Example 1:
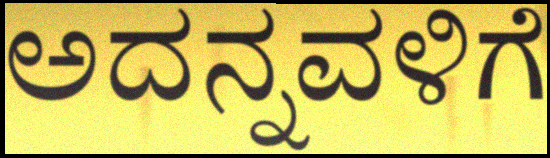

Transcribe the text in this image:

ಅದನ್ನವಳಿಗೆ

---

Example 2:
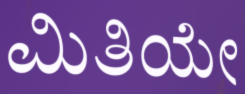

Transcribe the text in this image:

ಮಿತಿಯೇ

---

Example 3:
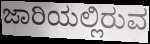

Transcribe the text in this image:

ಜಾರಿಯಲ್ಲಿರುವ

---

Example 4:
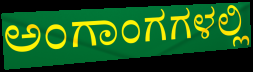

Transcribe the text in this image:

ಅಂಗಾಂಗಗಳಲ್ಲಿ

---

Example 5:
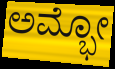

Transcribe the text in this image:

ಅಮ್ಭೋ